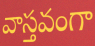
వాస్తవంగా